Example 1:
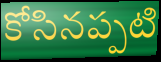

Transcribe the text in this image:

కోసినప్పటి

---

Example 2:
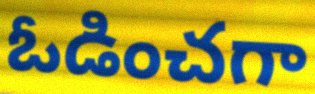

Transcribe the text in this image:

ఓడించగా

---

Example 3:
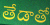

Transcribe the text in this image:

తేడాతో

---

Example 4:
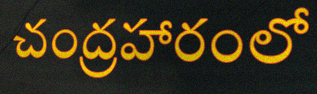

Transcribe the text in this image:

చంద్రహారంలో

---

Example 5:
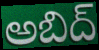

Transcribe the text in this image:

అబిద్